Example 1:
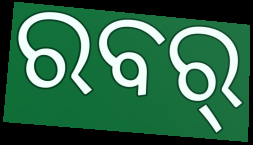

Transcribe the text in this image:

ରବର୍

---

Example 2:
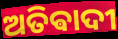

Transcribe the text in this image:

ଅତିଵାଦୀ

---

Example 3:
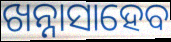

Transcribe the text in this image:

ଖନ୍ନାସାହେବ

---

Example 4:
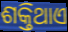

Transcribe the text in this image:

ଶକ୍ତିଥାଏ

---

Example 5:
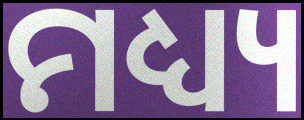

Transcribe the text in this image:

ମଧ୍ୟ୍ୟ